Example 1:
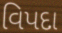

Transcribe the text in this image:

વિપદા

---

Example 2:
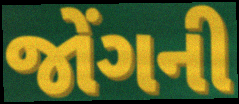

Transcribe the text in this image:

જોંગની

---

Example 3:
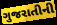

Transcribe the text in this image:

ગુજરાતીની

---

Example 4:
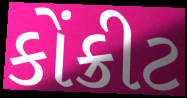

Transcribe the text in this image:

કોંક્રીટ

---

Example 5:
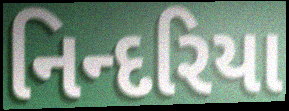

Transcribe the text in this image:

નિન્દરિયા